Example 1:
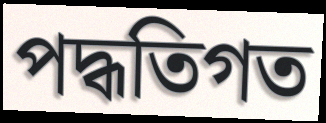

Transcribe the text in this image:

পদ্ধতিগত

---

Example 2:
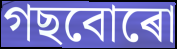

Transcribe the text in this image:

গছবোৰো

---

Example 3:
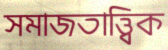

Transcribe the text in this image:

সমাজতাত্ত্বিক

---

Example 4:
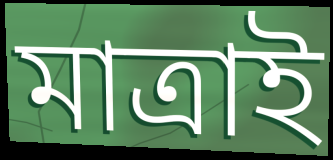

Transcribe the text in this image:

মাত্ৰাই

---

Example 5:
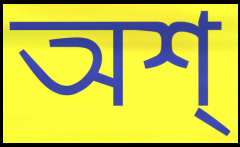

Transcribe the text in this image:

অশ্